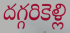
దగ్గరికెళ్లి